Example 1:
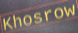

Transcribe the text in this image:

Khosrow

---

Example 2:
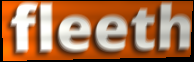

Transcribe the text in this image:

fleeth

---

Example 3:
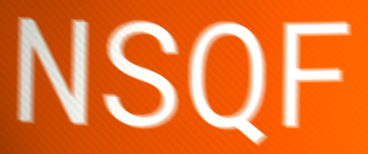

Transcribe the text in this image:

NSQF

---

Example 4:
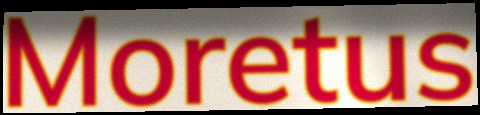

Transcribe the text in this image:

Moretus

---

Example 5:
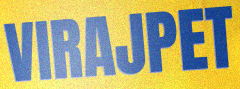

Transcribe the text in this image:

VIRAJPET